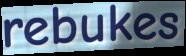
rebukes